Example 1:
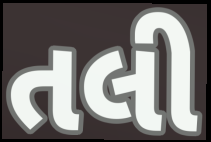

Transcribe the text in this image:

તલી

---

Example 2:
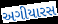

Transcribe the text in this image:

અગીયારસ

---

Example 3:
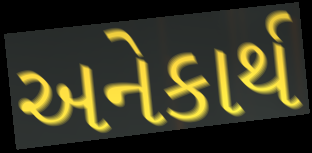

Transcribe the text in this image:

અનેકાર્થ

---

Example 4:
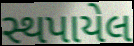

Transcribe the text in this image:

સ્થપાયેલ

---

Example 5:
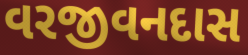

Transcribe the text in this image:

વરજીવનદાસ